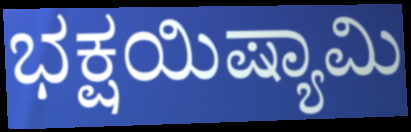
ಭಕ್ಷಯಿಷ್ಯಾಮಿ